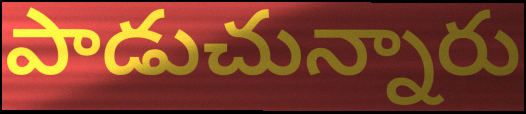
పాడుచున్నారు